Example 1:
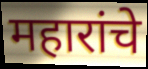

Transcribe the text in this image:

महारांचे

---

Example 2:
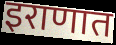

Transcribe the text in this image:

इराणात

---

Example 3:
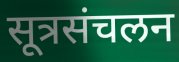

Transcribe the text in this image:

सूत्रसंचलन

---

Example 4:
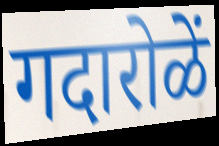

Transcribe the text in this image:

गदारोळें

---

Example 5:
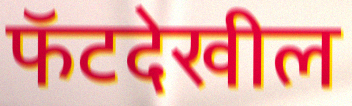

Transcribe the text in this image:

फॅटदेखील